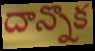
దాన్నొక